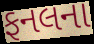
ફનલના